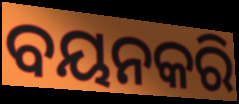
ବୟନକରି